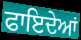
ਫਾਇਦੇਆਂ